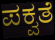
ಪಕ್ವತೆ